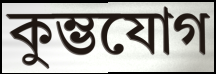
কুম্ভযোগ